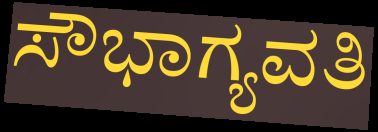
ಸೌಭಾಗ್ಯವತಿ